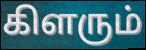
கிளரும்